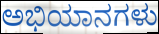
ಅಭಿಯಾನಗಳು